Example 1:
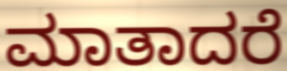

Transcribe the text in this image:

ಮಾತಾದರೆ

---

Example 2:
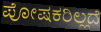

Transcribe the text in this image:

ಪೋಷಕರಿಲ್ಲದೆ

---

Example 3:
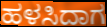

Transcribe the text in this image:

ಹಳಸಿದಾಗ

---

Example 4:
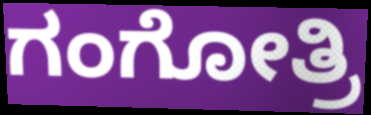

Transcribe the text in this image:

ಗಂಗೋತ್ರಿ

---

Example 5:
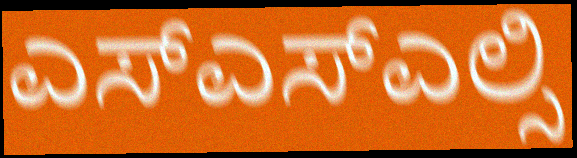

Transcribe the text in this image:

ಎಸ್ಎಸ್ಎಲ್ಸಿ